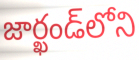
జార్ఖండ్‌లోని